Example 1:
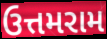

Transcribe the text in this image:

ઉત્તમરામ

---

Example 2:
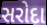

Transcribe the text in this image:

સરોદા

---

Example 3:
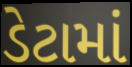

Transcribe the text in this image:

ડેટામાં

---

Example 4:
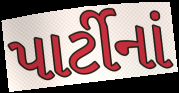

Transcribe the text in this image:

પાર્ટીનાં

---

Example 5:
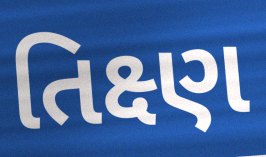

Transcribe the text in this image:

તિક્ષ્ણ